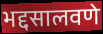
भद्दसालवणे